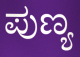
ಪುಣ್ಯ